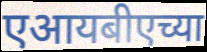
एआयबीएच्या